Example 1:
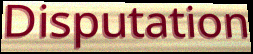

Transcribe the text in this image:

Disputation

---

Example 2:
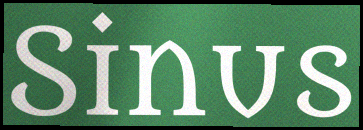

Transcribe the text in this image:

Sinus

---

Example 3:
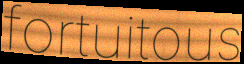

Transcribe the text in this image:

fortuitous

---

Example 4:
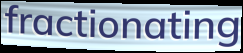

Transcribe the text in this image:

fractionating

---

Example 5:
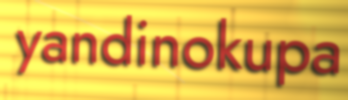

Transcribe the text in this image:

yandinokupa